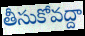
తీసుకోవద్దా